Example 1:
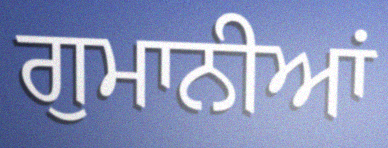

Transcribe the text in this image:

ਗੁਮਾਨੀਆਂ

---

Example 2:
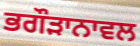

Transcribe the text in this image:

ਭਗੌੜਾਨਾਵਲ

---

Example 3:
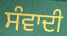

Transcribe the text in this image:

ਸੰਵਾਦੀ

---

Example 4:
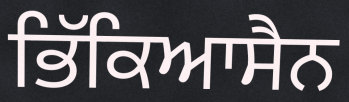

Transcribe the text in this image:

ਭਿੱਕਿਆਸੈਨ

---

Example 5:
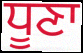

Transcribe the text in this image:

ਧੂਣਾ